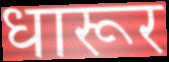
धारूर